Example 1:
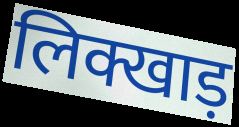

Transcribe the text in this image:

लिक्खाड़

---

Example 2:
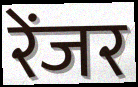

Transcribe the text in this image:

रेंजर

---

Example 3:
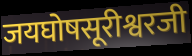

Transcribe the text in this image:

जयघोषसूरीश्वरजी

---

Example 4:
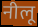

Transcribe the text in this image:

नीलू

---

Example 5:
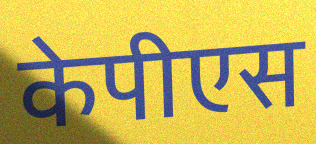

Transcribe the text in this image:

केपीएस